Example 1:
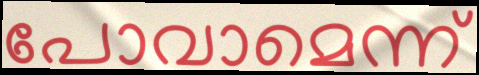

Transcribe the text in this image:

പോവാമെന്ന്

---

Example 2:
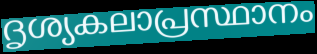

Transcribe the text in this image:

ദൃശ്യകലാപ്രസ്ഥാനം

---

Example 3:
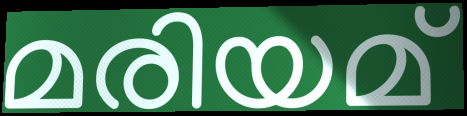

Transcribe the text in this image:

മരിയമ്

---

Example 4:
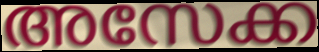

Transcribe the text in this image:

അസേക്ക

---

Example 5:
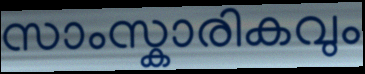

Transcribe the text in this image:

സാംസ്കാരികവും